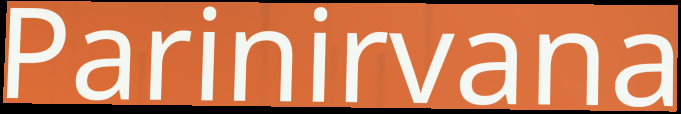
Parinirvana